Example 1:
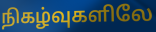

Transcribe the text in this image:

நிகழ்வுகளிலே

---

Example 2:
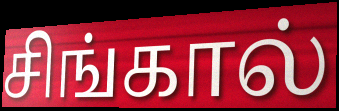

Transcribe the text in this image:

சிங்கால்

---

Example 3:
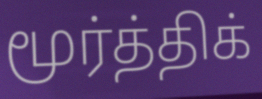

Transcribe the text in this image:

மூர்த்திக்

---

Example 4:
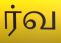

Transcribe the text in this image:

ர்வ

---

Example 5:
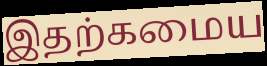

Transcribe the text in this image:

இதற்கமைய